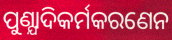
ପୁଣ୍ଯାଦିକର୍ମକରଣେନ